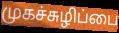
முகச்சுழிப்பை